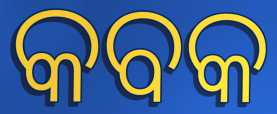
କବକ